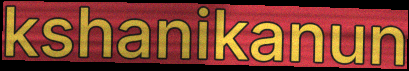
kshanikanun